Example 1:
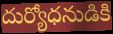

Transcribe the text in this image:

దుర్యోధనుడికి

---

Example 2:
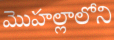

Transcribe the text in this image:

మొహల్లాలోని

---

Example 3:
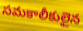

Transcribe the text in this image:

సమకాలీకులైన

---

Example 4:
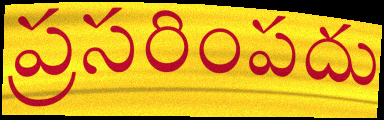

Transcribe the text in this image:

ప్రసరింపదు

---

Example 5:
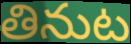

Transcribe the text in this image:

తినుట